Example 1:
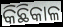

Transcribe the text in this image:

କିଛିକାଳ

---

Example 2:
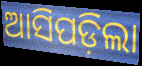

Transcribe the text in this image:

ଆସିପଡ଼ିଲା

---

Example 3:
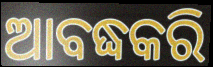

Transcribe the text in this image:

ଆବଦ୍ଧକରି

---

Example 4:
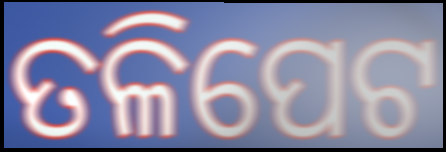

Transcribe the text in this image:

ତଳିପେଟ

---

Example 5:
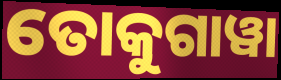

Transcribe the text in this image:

ତୋକୁଗାୱା